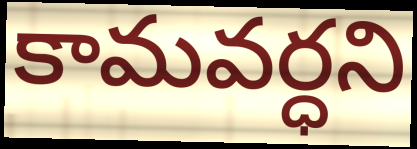
కామవర్ధని